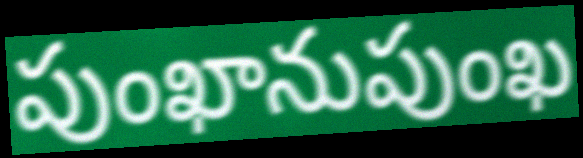
పుంఖానుపుంఖ